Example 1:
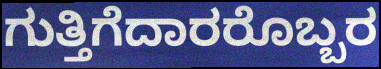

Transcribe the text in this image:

ಗುತ್ತಿಗೆದಾರರೊಬ್ಬರ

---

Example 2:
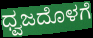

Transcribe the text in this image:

ಧ್ವಜದೊಳಗೆ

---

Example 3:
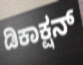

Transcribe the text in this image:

ಡಿಕಾಕ್ಷನ್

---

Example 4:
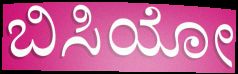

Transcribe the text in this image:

ಬಿಸಿಯೋ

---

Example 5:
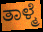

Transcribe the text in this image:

ತಾಳ್ಮೆ